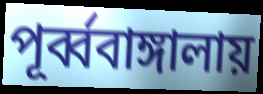
পূর্ব্ববাঙ্গালায়